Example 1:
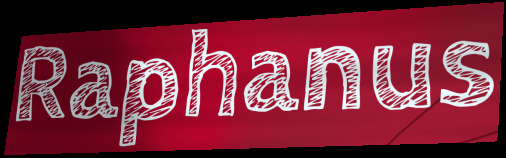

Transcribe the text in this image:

Raphanus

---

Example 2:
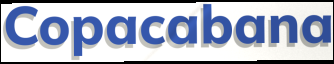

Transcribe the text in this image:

Copacabana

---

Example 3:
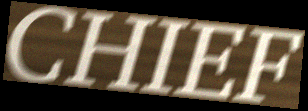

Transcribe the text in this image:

CHIEF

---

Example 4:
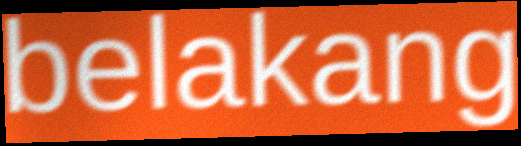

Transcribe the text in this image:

belakang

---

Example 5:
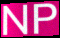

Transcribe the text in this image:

NP